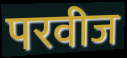
परवीज